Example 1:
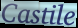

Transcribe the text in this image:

Castile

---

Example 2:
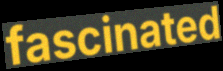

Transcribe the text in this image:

fascinated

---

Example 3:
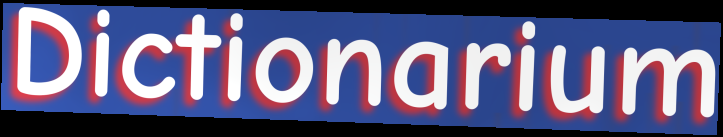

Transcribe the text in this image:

Dictionarium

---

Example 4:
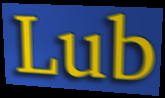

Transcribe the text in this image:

Lub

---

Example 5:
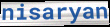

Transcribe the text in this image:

nisaryan